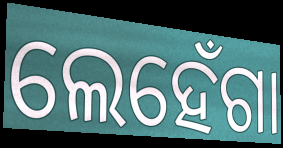
ଲେହେଁଗା